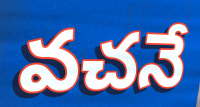
వచనే